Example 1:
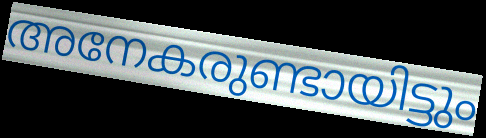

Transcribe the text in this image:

അനേകരുണ്ടായിട്ടും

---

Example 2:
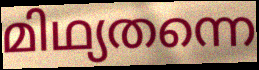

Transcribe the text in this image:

മിഥ്യതന്നെ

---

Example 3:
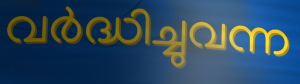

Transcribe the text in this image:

വർദ്ധിച്ചുവന്ന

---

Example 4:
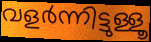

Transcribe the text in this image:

വളർന്നിട്ടുള്ളൂ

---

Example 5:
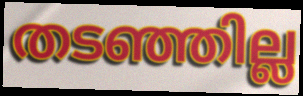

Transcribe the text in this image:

തടഞ്ഞില്ല